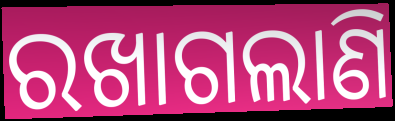
ରଖାଗଲାଣି